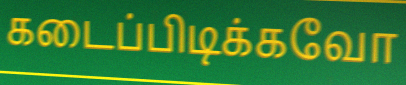
கடைப்பிடிக்கவோ